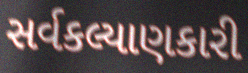
સર્વકલ્યાણકારી